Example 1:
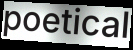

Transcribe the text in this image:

poetical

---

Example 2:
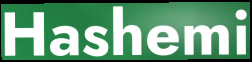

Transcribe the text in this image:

Hashemi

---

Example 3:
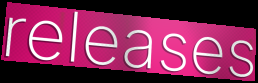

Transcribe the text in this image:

releases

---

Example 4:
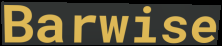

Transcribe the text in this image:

Barwise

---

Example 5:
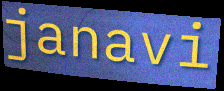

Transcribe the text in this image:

janavi